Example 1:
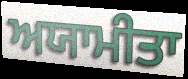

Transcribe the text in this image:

ਅਯਾਮੀਤਾ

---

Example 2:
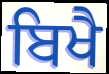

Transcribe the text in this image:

ਬਿਖੈ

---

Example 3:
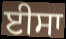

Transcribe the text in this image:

ਈਸਾ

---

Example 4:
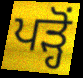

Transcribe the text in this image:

ਪੜ੍ਹੋਂ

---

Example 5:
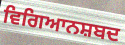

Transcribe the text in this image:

ਵਿਗਿਆਨਸ਼ਬਦ